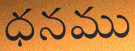
ధనము